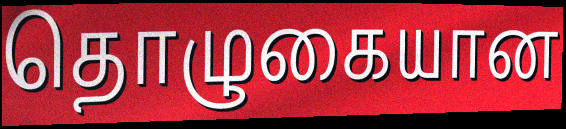
தொழுகையான